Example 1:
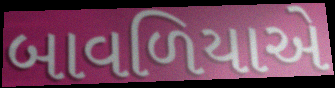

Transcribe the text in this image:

બાવળિયાએ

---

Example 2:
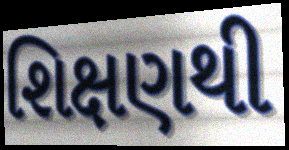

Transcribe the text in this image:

શિક્ષણથી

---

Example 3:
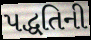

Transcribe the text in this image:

પદ્ધતિની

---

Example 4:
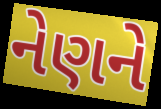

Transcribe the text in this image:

નેણને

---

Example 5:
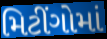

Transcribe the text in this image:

મિટીંગોમાં